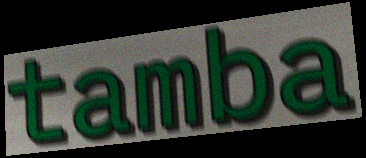
tamba